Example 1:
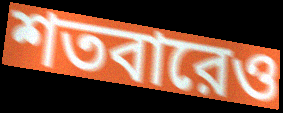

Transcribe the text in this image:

শতবারেও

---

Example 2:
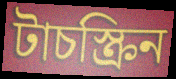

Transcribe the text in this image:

টাচস্ক্রিন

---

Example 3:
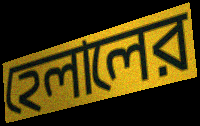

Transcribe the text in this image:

হেলালের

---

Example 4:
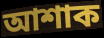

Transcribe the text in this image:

আশাক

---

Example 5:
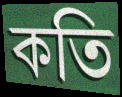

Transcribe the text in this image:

কতি